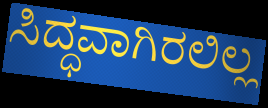
ಸಿದ್ಧವಾಗಿರಲಿಲ್ಲ